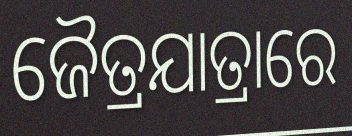
ଜୈତ୍ରଯାତ୍ରାରେ